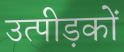
उत्पीड़कों